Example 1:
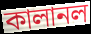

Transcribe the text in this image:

কালানল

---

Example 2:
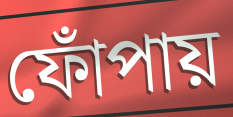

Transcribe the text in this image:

ফোঁপায়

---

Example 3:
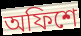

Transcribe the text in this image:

অফিশে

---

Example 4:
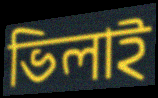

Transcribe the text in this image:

ভিলাই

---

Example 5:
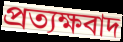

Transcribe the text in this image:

প্রত্যক্ষবাদ